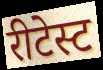
रीटेस्ट